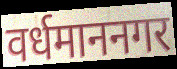
वर्धमाननगर